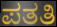
ಪತತಿ